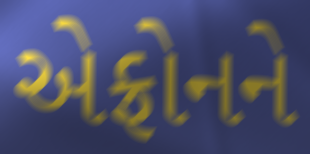
એફ્રોનને